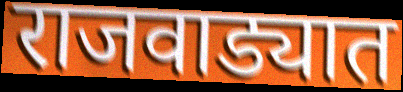
राजवाड्यात